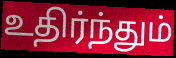
உதிர்ந்தும்